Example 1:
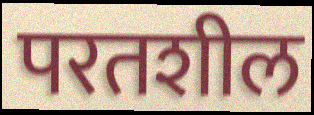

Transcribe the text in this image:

परतशील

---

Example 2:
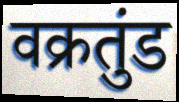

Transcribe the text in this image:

वक्रतुंड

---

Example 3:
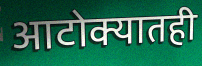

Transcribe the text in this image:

आटोक्यातही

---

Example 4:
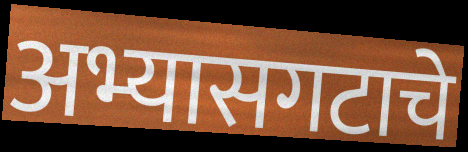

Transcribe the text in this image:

अभ्यासगटाचे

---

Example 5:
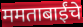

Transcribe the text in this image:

ममताबाईंचे